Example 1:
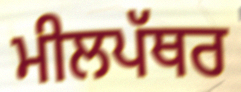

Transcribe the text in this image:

ਮੀਲਪੱਥਰ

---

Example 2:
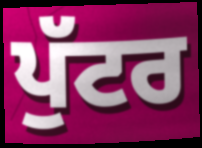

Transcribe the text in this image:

ਪੁੱਟਰ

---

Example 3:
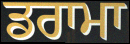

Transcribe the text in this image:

ਡਰਾਮਾ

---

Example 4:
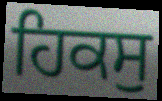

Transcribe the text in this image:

ਹਿਕਸੁ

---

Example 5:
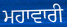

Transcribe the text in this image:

ਮਹਾਵਾਰੀ